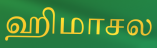
ஹிமாசல